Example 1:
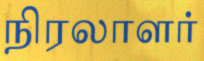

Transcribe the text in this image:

நிரலாளர்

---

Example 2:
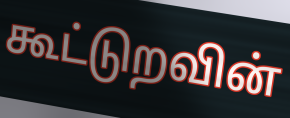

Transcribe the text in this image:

கூட்டுறவின்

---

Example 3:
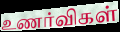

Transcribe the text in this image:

உணர்விகள்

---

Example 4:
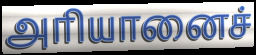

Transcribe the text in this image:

அரியானைச்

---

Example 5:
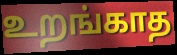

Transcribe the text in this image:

உறங்காத